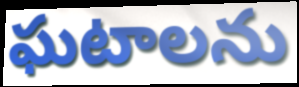
ఘటాలను